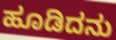
ಹೂಡಿದನು